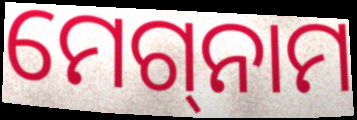
ମେଗ୍‌ନାମ